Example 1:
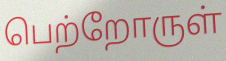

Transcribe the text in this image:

பெற்றோருள்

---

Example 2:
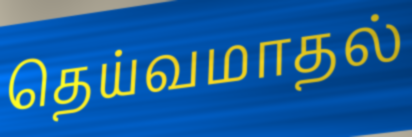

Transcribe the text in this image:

தெய்வமாதல்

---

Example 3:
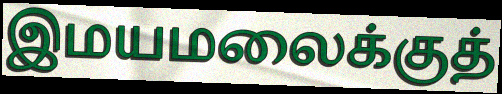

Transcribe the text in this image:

இமயமலைக்குத்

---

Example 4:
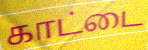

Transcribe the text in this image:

காட்டை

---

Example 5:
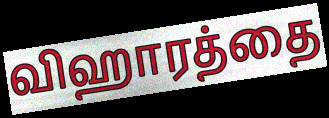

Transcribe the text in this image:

விஹாரத்தை